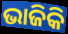
ଭାଜିକି